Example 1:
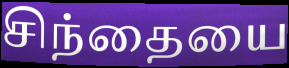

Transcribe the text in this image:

சிந்தையை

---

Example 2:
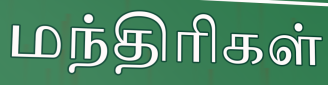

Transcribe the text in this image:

மந்திரிகள்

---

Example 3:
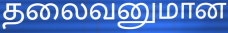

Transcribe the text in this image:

தலைவனுமான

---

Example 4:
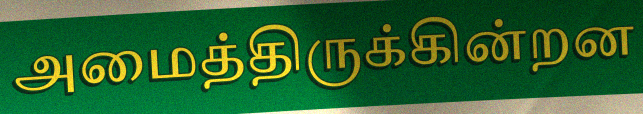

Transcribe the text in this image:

அமைத்திருக்கின்றன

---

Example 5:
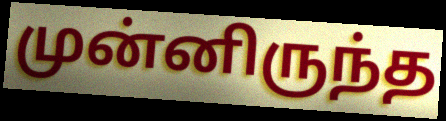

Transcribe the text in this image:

முன்னிருந்த